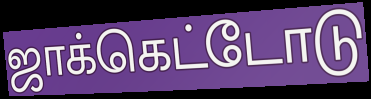
ஜாக்கெட்டோடு